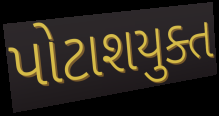
પોટાશયુક્ત